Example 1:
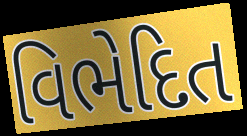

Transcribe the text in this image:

વિભેદિત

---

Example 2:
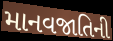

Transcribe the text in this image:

માનવજાતિની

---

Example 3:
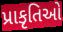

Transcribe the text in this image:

પ્રાકૃતિઓ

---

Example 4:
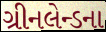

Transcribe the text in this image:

ગ્રીનલેન્ડના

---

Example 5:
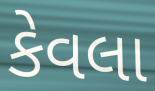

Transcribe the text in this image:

કેવલા